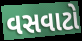
વસવાટો